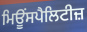
ਮਿਊਂਸਪੈਲਿਟੀਜ਼